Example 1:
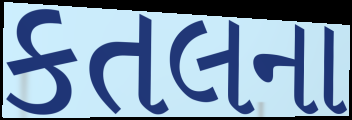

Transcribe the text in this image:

કતલના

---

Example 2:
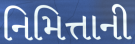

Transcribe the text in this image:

નિમિત્તાની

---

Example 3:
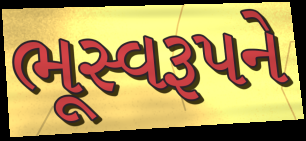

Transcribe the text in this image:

ભૂસ્વરૂપને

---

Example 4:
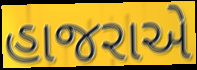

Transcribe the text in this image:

હાજરાએ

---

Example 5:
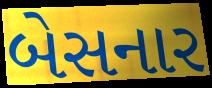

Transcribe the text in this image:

બેસનાર